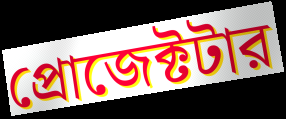
প্রোজেক্টটার